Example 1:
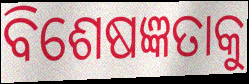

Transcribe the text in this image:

ବିଶେଷଜ୍ଞତାକୁ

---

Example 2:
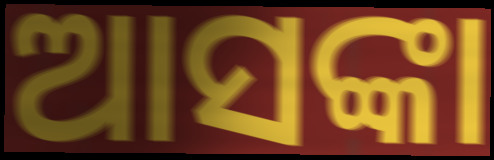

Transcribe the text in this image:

ଆସଙ୍କା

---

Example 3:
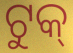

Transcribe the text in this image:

ଟୁକ୍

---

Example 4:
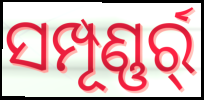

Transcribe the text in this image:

ସମ୍ପୂଣ୍ଣର୍ର୍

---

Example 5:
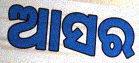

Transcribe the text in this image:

ଆସର